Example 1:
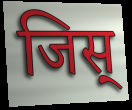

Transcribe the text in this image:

जिस्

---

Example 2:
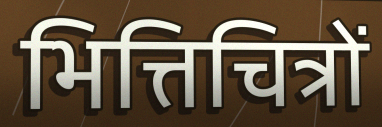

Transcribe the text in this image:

भित्तिचित्रों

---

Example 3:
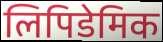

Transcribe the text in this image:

लिपिडेमिक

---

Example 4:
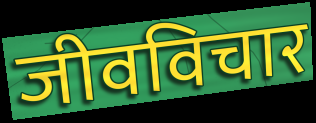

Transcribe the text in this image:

जीवविचार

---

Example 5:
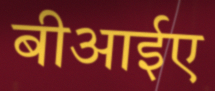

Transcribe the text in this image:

बीआईए